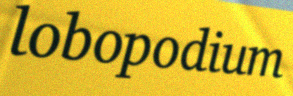
lobopodium